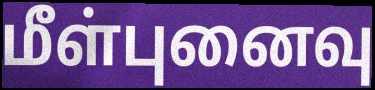
மீள்புனைவு